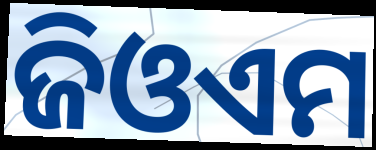
ଜିଓଏମ